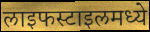
लाइफस्टाइलमध्ये